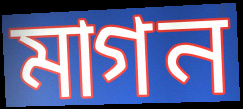
মাগন